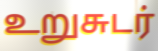
உறுசுடர்